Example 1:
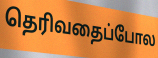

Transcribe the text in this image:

தெரிவதைப்போல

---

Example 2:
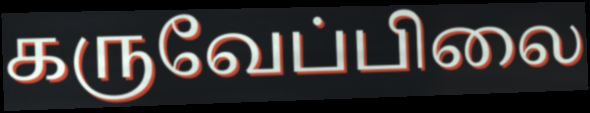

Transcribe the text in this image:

கருவேப்பிலை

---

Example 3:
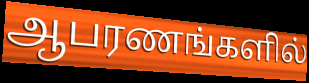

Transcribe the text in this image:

ஆபரணங்களில்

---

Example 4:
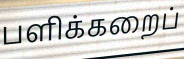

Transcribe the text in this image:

பளிக்கறைப்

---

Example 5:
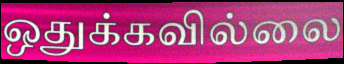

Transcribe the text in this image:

ஒதுக்கவில்லை